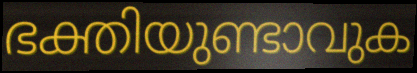
ഭക്തിയുണ്ടാവുക